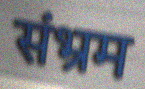
संभ्रम